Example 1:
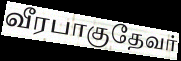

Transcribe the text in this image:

வீரபாகுதேவர்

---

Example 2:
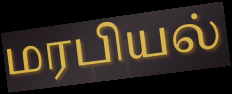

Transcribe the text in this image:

மரபியல்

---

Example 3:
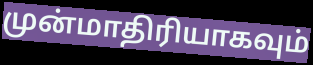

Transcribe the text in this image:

முன்மாதிரியாகவும்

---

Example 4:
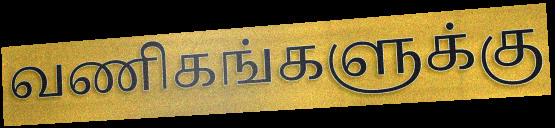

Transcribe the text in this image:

வணிகங்களுக்கு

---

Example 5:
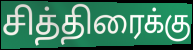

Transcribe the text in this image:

சித்திரைக்கு